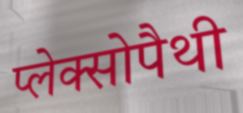
प्लेक्सोपैथी